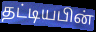
தட்டியபின்